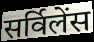
सर्विलेंस